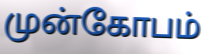
முன்கோபம்